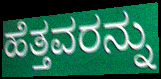
ಹೆತ್ತವರನ್ನು